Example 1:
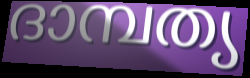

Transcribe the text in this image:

ദാമ്പത്യ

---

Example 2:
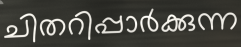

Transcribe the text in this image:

ചിതറിപ്പാർക്കുന്ന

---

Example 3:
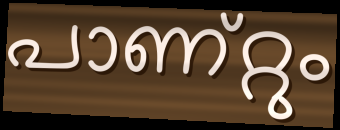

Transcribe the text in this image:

പാണ്റ്റും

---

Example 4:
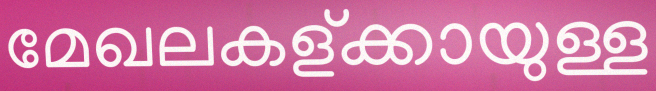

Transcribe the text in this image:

മേഖലകള്ക്കായുള്ള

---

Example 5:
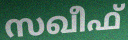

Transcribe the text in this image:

സഖീഫ്